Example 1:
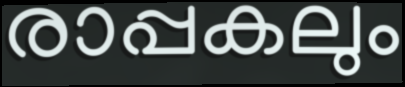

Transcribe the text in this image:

രാപ്പകലും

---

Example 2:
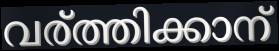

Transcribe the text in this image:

വര്ത്തിക്കാന്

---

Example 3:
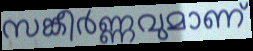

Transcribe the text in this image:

സങ്കീർണ്ണവുമാണ്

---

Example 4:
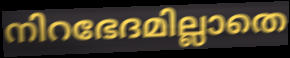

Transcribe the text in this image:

നിറഭേദമില്ലാതെ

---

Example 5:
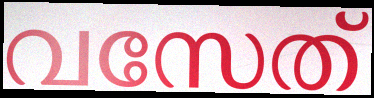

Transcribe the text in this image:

വസേത്